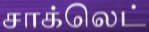
சாக்லெட்